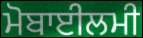
ਮੋਬਾਈਲਮੀ